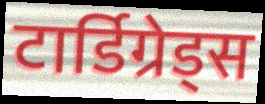
टार्डिग्रेड्स